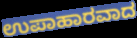
ಉಪಾಹಾರವಾದ